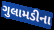
ગુલામડીના